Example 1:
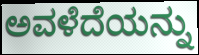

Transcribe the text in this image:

ಅವಳೆದೆಯನ್ನು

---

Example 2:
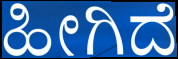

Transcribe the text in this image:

ಹೀಗಿದೆ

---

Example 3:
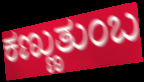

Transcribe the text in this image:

ಕಣ್ಣುತುಂಬ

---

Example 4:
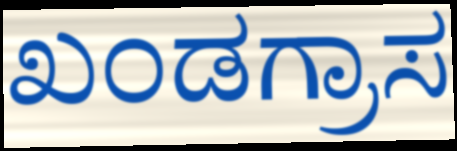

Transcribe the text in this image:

ಖಂಡಗ್ರಾಸ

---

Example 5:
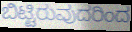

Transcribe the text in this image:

ಬಿಟ್ಟಿರುವುದರಿಂದ